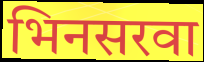
भिनसरवा